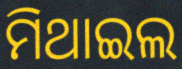
ମିଥାଇଲ